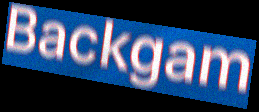
Backgam